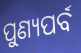
ପୁଣ୍ୟପର୍ବ